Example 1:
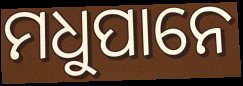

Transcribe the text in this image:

ମଧୁପାନେ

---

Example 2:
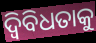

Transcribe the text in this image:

ଦ୍ୱିବିଧତାକୁ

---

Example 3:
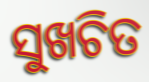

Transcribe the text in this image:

ସୁଖଚିତ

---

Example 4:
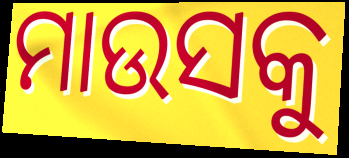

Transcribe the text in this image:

ମାଉସକୁ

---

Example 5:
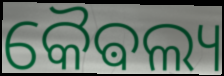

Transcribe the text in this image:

କୈଵଲ୍ୟ